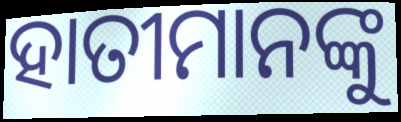
ହାତୀମାନଙ୍କୁ